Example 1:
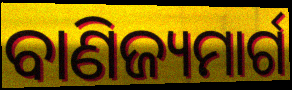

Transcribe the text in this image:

ବାଣିଜ୍ୟମାର୍ଗ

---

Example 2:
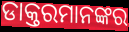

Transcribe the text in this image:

ଡାକ୍ତରମାନଙ୍କର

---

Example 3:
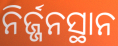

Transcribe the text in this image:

ନିର୍ଜ୍ଜନସ୍ଥାନ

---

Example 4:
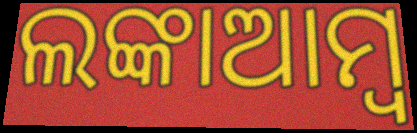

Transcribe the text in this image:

ଲଙ୍କାଆମ୍ବ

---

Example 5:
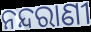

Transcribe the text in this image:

ନନ୍ଦରାଣୀ